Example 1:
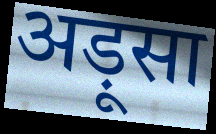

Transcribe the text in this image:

अड़ूसा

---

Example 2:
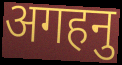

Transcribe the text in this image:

अगहनु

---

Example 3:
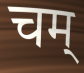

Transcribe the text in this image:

चम्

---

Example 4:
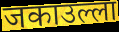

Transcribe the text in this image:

जकाउल्ला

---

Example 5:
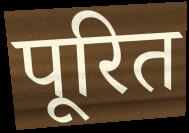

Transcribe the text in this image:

पूरित